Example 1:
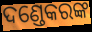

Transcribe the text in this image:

ଦଣ୍ଡେକରଙ୍କ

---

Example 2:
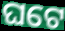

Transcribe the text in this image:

ଘଟେ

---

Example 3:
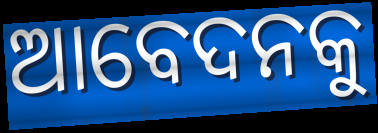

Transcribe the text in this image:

ଆବେଦନକୁ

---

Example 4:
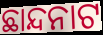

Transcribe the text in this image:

ଛାନ୍ଦନାଟ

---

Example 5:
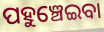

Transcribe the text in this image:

ପହୁଞ୍ଚେଇବା